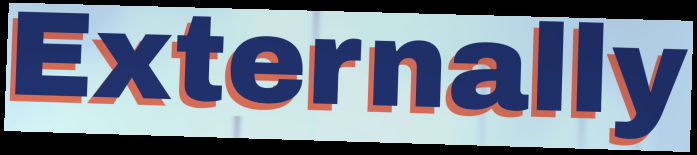
Externally